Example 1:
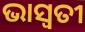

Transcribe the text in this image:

ଭାସ୍ବତୀ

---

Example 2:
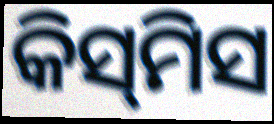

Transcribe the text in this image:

କିସ୍‌ମିସ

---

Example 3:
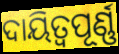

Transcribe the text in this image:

ଦାୟିତ୍ବପୂର୍ଣ୍ଣ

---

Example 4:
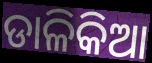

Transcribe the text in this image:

ଡାଳିକିଆ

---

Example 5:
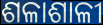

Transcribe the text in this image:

ଶଳାଶାଳୀ